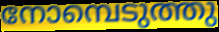
നോമ്പെടുത്തു